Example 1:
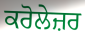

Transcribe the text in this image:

ਕਰੋਲੇਜ਼ਰ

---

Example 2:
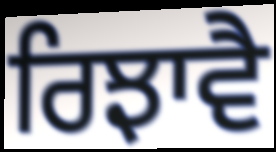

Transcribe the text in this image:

ਰਿਝਾਵੈ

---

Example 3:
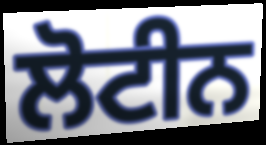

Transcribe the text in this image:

ਲੋਟੀਨ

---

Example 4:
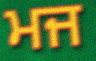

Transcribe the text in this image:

ਮਜ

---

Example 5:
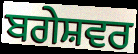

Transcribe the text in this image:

ਬਗੇਸ਼ਵਰ